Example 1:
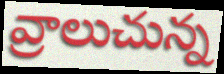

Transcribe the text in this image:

వ్రాలుచున్న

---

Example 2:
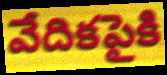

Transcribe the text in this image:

వేదికపైకి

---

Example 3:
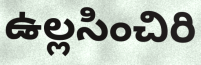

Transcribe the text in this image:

ఉల్లసించిరి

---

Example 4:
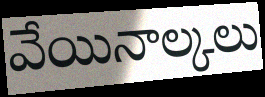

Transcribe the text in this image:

వేయినాల్కలు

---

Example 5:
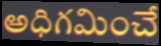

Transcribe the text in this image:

అధిగమించే